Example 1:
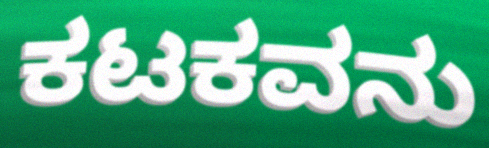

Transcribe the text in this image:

ಕಟಕವನು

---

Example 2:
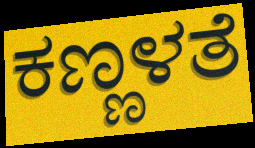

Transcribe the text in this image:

ಕಣ್ಣಳತೆ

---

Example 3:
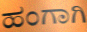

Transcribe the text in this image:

ಹಂಗಾಗಿ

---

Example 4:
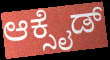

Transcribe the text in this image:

ಆಕ್ಸೈಡ್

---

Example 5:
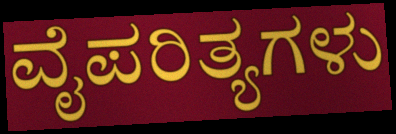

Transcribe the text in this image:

ವೈಪರಿತ್ಯಗಳು